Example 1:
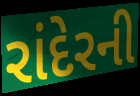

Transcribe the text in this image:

રાંદેરની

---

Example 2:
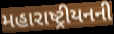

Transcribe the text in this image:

મહારાષ્ટ્રીયનની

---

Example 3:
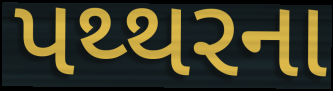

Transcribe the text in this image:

પથ્થરના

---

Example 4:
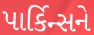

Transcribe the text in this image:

પાર્કિન્સને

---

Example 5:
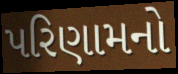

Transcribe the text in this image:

પરિણામનો